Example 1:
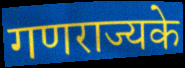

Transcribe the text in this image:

गणराज्यके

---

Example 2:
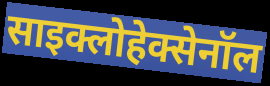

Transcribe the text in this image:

साइक्लोहेक्सेनॉल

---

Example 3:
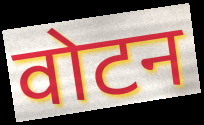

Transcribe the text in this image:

वोटन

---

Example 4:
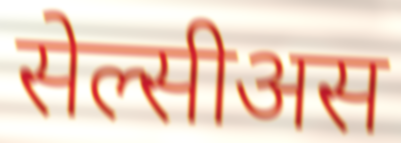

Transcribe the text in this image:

सेल्सीअस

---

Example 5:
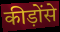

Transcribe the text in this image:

कीड़ोंसे